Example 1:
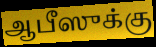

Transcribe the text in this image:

ஆபீஸுக்கு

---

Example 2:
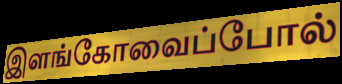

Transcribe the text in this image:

இளங்கோவைப்போல்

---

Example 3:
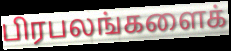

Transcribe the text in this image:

பிரபலங்களைக்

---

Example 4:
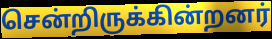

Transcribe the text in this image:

சென்றிருக்கின்றனர்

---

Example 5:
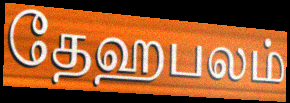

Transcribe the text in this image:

தேஹபலம்